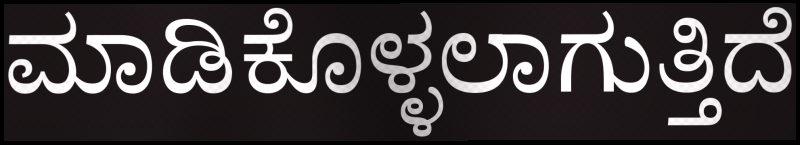
ಮಾಡಿಕೊಳ್ಳಲಾಗುತ್ತಿದೆ